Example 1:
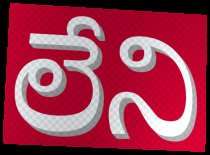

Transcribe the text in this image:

లేని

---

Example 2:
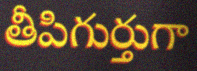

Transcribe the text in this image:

తీపిగుర్తుగా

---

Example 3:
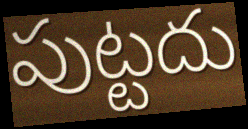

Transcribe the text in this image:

పుట్టదు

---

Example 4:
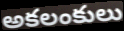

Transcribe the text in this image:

అకలంకులు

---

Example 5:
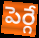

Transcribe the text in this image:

పెర్గే